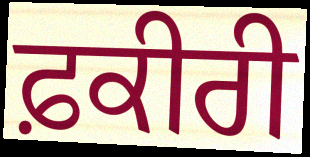
ਫ਼ਕੀਰੀ